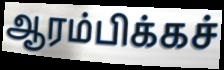
ஆரம்பிக்கச்